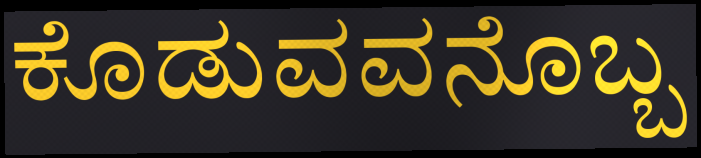
ಕೊಡುವವನೊಬ್ಬ